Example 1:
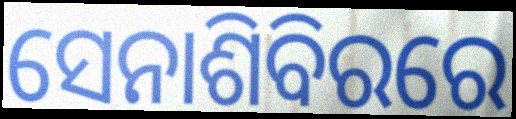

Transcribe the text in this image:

ସେନାଶିବିରରେ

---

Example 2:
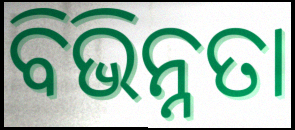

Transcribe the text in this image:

ବିଭିନ୍ନତା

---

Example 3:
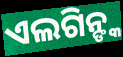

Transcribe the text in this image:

ଏଲଗିନ୍ଙ୍କ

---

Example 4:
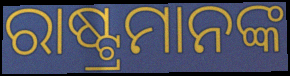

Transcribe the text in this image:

ରାଷ୍ଟ୍ରମାନଙ୍କ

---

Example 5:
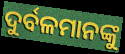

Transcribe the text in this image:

ଦୁର୍ବଳମାନଙ୍କୁ